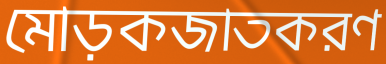
মোড়কজাতকরণ